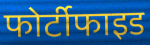
फोर्टीफाइड